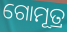
ଗୋମୂତ୍ର